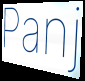
Panj